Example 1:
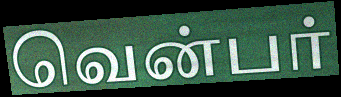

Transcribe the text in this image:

வென்பர்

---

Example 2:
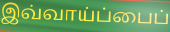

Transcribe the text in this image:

இவ்வாய்ப்பைப்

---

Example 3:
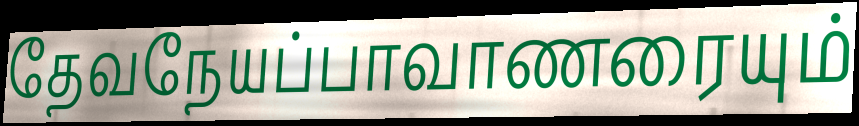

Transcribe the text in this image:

தேவநேயப்பாவாணரையும்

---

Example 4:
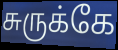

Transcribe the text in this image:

சுருக்கே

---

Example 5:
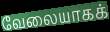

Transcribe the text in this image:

வேலையாகக்